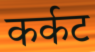
कर्कट